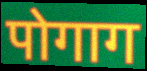
पोगाग